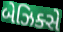
બેઝિક્સે